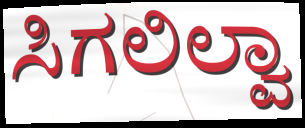
ಸಿಗಲಿಲ್ವಾ